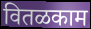
वितळकाम